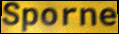
Sporne